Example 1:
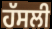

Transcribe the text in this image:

ਹੱਸਲੀ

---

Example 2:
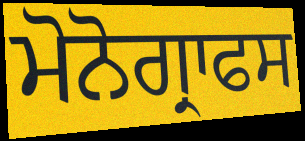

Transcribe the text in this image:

ਮੋਨੋਗ੍ਰਾਫਸ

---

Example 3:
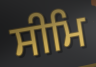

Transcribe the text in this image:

ਸੀਮਿ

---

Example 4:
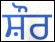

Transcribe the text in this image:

ਸ਼ੌਰ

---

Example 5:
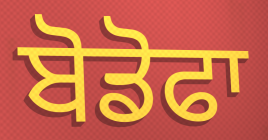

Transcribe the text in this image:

ਬੋਡੋਫਾ